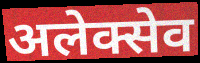
अलेक्सेव